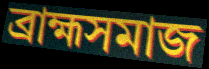
ব্রাহ্মসমাজ